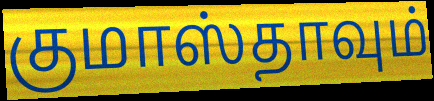
குமாஸ்தாவும்